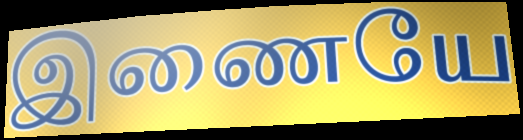
இணையே